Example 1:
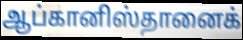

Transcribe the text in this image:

ஆப்கானிஸ்தானைக்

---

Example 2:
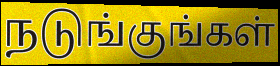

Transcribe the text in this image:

நடுங்குங்கள்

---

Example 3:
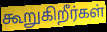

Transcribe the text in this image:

கூறுகிறீர்கள்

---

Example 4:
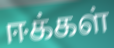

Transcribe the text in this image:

ஈக்கள்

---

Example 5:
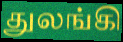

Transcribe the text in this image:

துலங்கி